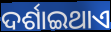
ଦର୍ଶାଇଥାଏ